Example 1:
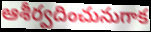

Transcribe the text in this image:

ఆశీర్వదించునుగాక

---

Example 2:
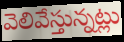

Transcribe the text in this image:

వెలివేస్తున్నట్లు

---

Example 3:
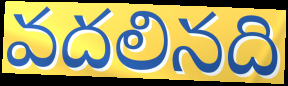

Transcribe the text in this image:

వదలినది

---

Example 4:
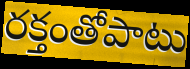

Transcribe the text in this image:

రక్తంతోపాటు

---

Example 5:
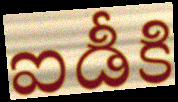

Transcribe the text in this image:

ఐడీకి